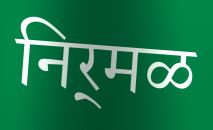
निर्मळ